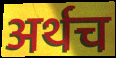
अर्थच